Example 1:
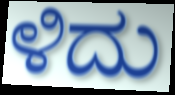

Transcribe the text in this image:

ಳಿದು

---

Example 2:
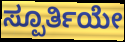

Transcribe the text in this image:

ಸ್ಪೂರ್ತಿಯೇ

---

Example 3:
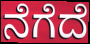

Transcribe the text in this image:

ನೆಗೆದೆ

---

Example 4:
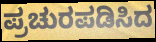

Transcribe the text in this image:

ಪ್ರಚುರಪಡಿಸಿದ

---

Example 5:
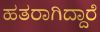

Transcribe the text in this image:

ಹತರಾಗಿದ್ದಾರೆ